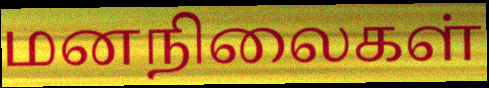
மனநிலைகள்